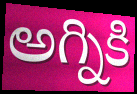
అగ్నికి